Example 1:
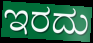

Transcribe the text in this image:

ಇರದು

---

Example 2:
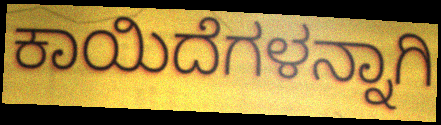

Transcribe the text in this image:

ಕಾಯಿದೆಗಳನ್ನಾಗಿ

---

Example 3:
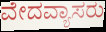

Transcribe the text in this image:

ವೇದವ್ಯಾಸರು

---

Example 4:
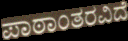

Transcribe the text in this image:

ಪಾಠಾಂತರವಿದೆ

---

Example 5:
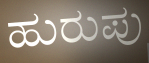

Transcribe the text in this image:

ಹುರುಪು